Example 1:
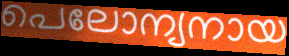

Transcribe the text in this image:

പെലോന്യനായ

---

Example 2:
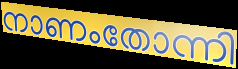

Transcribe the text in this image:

നാണംതോന്നി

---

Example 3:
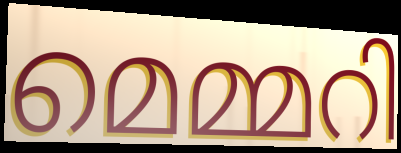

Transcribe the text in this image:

മെമ്മറി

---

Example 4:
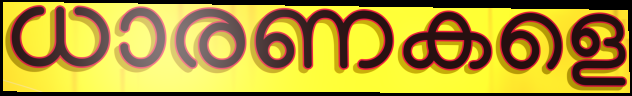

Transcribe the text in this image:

ധാരണകളെ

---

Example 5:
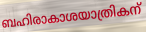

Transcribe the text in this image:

ബഹിരാകാശയാത്രികന്